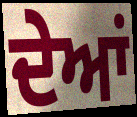
ਦੇਆਂ